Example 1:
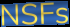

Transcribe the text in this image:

NSFs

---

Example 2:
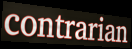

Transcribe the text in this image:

contrarian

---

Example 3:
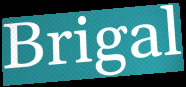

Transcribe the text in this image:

Brigal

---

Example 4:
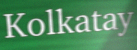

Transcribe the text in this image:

Kolkatay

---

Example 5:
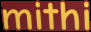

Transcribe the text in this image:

mithi